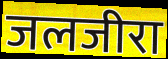
जलजीरा